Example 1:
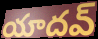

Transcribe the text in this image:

యాదవ్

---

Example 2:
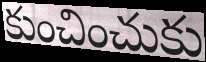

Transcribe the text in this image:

కుంచించుకు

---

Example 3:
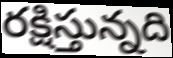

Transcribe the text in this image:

రక్షిస్తున్నది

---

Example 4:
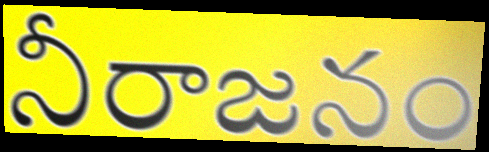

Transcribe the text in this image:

నీరాజనం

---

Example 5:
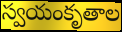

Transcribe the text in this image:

స్వయంకృతాల